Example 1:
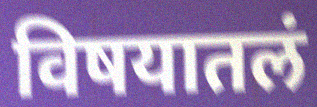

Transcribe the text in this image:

विषयातलं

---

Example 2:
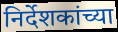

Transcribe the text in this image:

निर्देशकांच्या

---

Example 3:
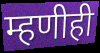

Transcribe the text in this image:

म्हणीही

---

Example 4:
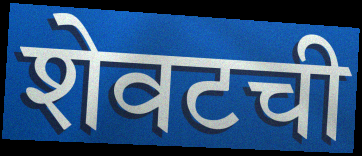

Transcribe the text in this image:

शेवटची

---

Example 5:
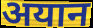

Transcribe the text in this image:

अयान